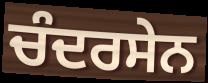
ਚੰਦਰਸੇਨ